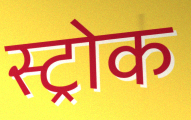
स्ट्रोक